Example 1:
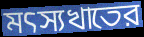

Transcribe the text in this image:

মৎস্যখাতের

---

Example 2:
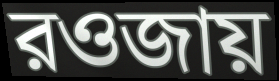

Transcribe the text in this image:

রওজায়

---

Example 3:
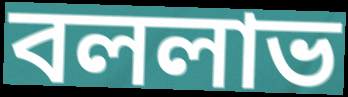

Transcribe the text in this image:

বললাভ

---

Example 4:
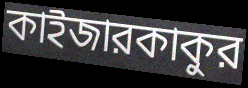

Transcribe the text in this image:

কাইজারকাকুর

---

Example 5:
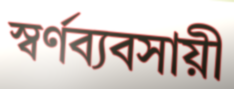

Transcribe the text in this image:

স্বর্ণব্যবসায়ী